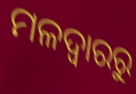
ମଳଦ୍ୱାରରୁ